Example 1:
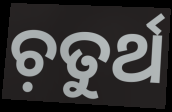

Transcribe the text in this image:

ଚ଼ତୁର୍ଥ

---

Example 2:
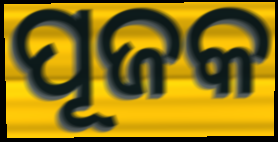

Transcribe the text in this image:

ପୂଜକ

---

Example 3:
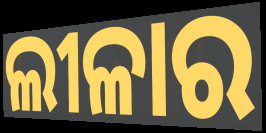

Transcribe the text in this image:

ଲୀଳାର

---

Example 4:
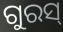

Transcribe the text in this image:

ଗୁରସ୍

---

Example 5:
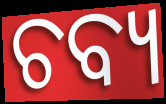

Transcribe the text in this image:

ଚବ୍ୟ